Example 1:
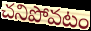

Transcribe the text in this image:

చనిపోవటం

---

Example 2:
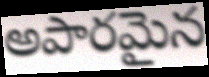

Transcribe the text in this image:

అపారమైన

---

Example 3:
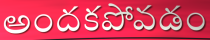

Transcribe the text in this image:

అందకపోవడం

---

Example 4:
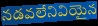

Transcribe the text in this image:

నడవలేనివియైన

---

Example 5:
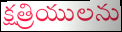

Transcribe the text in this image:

క్షత్రియులను